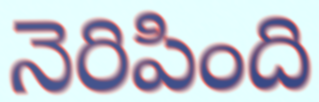
నెరిపింది